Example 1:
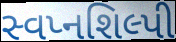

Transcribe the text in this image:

સ્વપ્નશિલ્પી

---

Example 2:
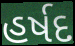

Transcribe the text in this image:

હર્ષદ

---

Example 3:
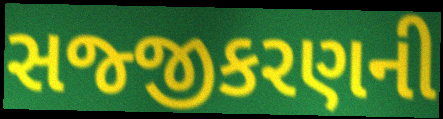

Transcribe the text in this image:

સજ્જીકરણની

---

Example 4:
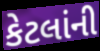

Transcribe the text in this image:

કેટલાંની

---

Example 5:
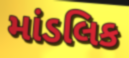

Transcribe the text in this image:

માંડલિક